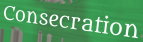
Consecration